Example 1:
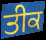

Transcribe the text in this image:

ਤੀਕ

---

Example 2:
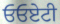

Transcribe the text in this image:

ਓਓਏਟੀ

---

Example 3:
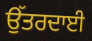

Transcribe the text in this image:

ਉੱਤਰਦਾਈ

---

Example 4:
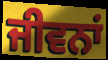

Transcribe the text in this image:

ਜੀਵਨਾਂ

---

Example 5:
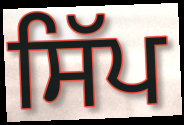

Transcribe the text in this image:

ਸਿੱਪ